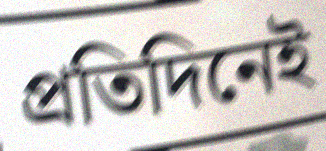
প্ৰতিদিনেই